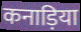
कनाड़िया